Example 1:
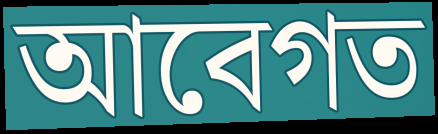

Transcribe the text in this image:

আবেগত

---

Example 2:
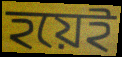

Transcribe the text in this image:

হয়েই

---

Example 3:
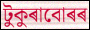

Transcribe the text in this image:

টুকুৰাবোৰৰ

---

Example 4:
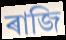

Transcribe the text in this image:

ৰাজি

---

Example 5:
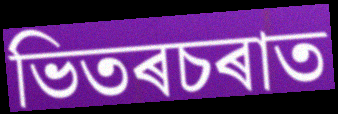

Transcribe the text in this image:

ভিতৰচৰাত